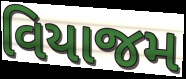
વિયાજમ